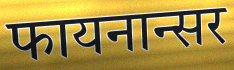
फायनान्सर